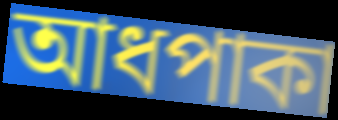
আধপাকা